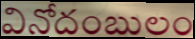
వినోదంబులం